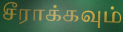
சீராக்கவும்